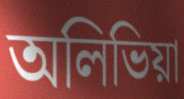
অলিভিয়া